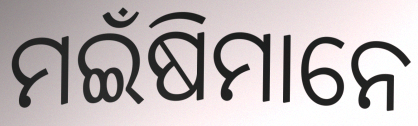
ମଇଁଷିମାନେ